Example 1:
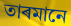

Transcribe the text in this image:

তাৰমানে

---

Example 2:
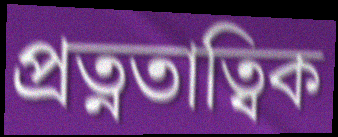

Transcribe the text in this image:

প্ৰত্নতাত্বিক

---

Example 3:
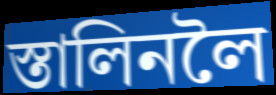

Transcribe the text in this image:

স্তালিনলৈ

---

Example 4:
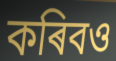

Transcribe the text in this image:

কৰিবও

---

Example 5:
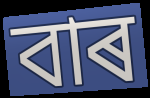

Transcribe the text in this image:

বাৰ